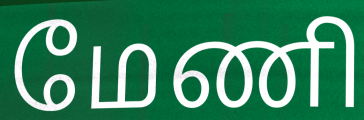
மேணி